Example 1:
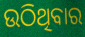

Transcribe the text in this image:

ଉଠିଥିବାର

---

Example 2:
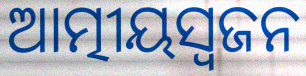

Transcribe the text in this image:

ଆତ୍ମୀୟସ୍ୱଜନ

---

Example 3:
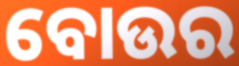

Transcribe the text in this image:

ବୋଉର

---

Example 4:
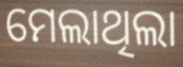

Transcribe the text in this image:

ମେଲାଥିଲା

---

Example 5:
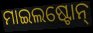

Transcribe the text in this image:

ମାଇଲଷ୍ଟୋନ୍